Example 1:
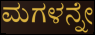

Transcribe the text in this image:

ಮಗಳನ್ನೇ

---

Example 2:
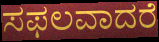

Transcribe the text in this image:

ಸಫಲವಾದರೆ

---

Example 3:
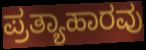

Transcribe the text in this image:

ಪ್ರತ್ಯಾಹಾರವು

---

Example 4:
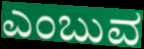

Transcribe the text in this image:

ಎಂಬುವ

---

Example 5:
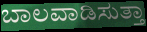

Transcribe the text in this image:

ಬಾಲವಾಡಿಸುತ್ತಾ